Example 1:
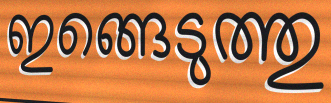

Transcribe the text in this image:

ഇങ്ങെടുത്തു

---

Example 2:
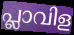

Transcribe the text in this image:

പ്ലാവിള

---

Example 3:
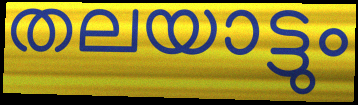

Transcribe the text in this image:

തലയാട്ടും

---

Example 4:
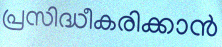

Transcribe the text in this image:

പ്രസിദ്ധീകരിക്കാൻ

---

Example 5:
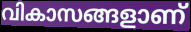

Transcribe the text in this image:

വികാസങ്ങളാണ്